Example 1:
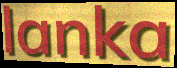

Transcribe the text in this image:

lanka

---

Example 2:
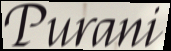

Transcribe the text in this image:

Purani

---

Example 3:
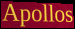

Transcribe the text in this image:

Apollos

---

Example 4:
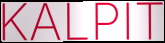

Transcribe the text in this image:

KALPIT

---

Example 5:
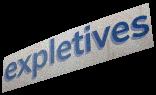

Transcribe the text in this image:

expletives